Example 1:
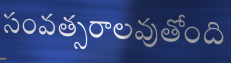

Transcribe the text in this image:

సంవత్సరాలవుతోంది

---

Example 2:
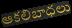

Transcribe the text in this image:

ఆకలిబాధలు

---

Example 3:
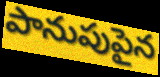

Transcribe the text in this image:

పానుపుపైన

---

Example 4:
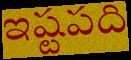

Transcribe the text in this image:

ఇష్టపది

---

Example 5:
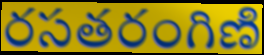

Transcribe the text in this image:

రసతరంగిణి